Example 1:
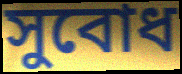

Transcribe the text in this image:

সুবোধ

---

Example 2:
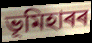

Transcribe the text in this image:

ভূমিহাৰৰ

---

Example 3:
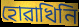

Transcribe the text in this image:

হোৱাখিনি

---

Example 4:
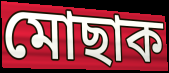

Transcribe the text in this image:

মোছাক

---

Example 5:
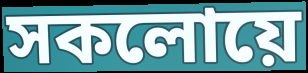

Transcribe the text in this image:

সকলোয়ে